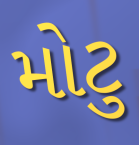
મોટુ